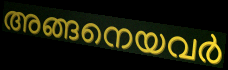
അങ്ങനെയവർ